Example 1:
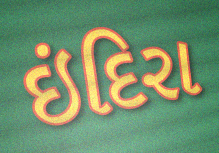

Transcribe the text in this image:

ઇંદિરા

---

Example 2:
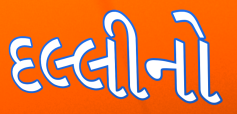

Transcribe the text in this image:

દલ્લીનો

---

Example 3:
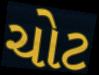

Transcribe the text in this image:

ચોટ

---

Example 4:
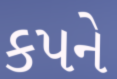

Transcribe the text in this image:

કપને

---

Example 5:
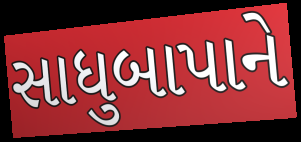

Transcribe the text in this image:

સાધુબાપાને